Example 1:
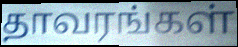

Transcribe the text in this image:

தாவரங்கள்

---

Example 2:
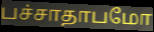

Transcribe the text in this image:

பச்சாதாபமோ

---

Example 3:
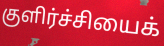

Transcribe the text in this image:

குளிர்ச்சியைக்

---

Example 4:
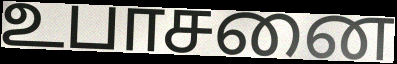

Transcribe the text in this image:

உபாசனை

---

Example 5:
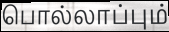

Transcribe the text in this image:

பொல்லாப்பும்